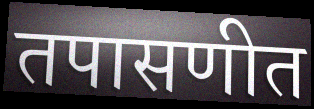
तपासणीत